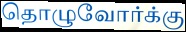
தொழுவோர்க்கு